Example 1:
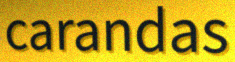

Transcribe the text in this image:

carandas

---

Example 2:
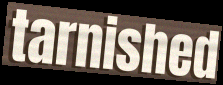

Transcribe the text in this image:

tarnished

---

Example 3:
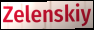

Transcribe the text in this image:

Zelenskiy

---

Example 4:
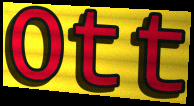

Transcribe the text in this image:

Ott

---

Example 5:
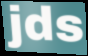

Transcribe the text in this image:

jds